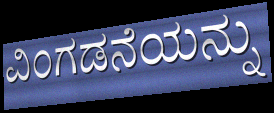
ವಿಂಗಡನೆಯನ್ನು